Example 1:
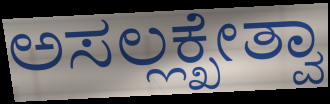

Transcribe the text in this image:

ಅಸಲ್ಲಕ್ಖೇತ್ವಾ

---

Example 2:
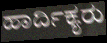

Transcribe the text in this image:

ಹಾರ್ದಿಕ್ಯರು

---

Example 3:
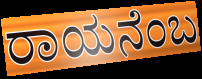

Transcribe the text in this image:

ರಾಯನೆಂಬ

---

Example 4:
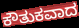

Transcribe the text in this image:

ಕೌತುಕವಾದ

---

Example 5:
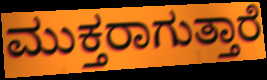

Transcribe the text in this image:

ಮುಕ್ತರಾಗುತ್ತಾರೆ